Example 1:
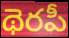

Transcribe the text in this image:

థెరపీ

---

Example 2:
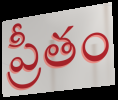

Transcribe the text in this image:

ప్రీతం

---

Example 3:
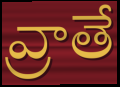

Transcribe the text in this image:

వ్రాతే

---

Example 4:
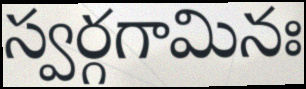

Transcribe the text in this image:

స్వర్గగామినః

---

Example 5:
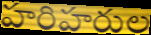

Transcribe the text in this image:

హరిహరుల